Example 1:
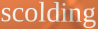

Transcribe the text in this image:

scolding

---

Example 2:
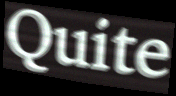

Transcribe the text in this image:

Quite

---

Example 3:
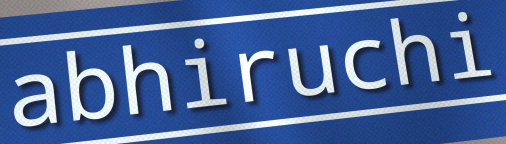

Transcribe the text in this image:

abhiruchi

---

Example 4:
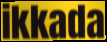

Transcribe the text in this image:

ikkada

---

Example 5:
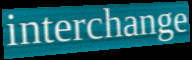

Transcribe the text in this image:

interchange